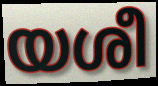
യശീ